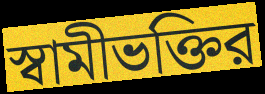
স্বামীভক্তির